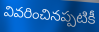
వివరించినప్పటికీ